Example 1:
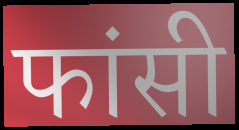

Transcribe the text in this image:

फांसी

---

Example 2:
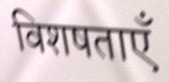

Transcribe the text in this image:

विशषताएँ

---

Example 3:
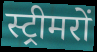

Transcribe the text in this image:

स्ट्रीमरों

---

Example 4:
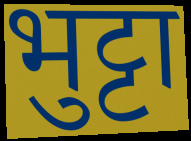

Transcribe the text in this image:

भुट्टा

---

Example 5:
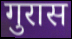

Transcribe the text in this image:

गुरास